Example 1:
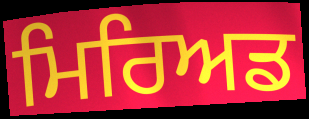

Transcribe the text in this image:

ਮਿਰਿਅਡ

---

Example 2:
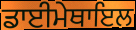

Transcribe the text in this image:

ਡਾਈਮੇਥਾਇਲ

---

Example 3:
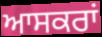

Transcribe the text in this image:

ਆਸਕਰਾਂ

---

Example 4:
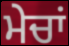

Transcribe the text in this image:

ਮੇਚਾਂ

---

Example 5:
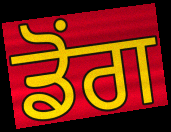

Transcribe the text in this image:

ਡੋਂਗ